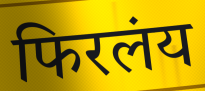
फिरलंय